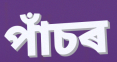
পাঁচৰ